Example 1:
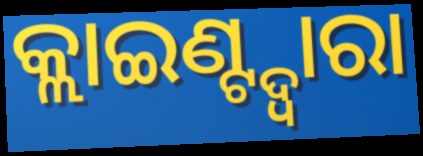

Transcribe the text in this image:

କ୍ଲାଇଣ୍ଟ୍ଦ୍ୱାରା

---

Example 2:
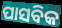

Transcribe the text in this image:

ପାସବିକ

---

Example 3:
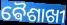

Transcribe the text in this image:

ଵୈଶାଖୀ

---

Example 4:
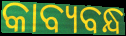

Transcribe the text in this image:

କାବ୍ୟବନ୍ଧ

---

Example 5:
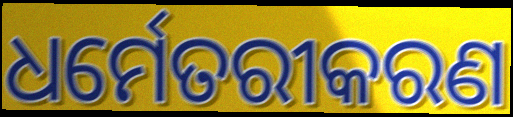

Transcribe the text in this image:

ଧର୍ମେତରୀକରଣ